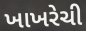
ખાખરેચી